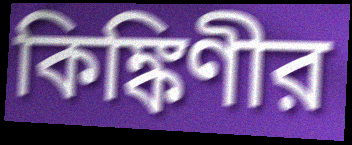
কিঙ্কিণীর